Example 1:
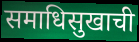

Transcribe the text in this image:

समाधिसुखाची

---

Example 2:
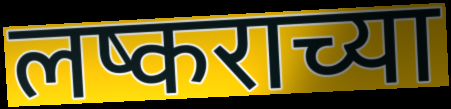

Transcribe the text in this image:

लष्कराच्या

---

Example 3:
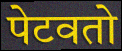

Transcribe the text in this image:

पेटवतो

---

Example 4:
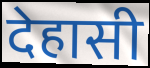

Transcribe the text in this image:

देहासी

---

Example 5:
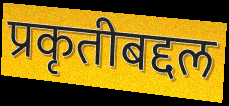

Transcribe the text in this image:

प्रकृतीबद्दल